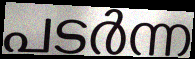
പടർന്ന